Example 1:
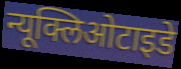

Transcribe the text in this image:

न्यूक्लिओटाइडे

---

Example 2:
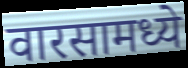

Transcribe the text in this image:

वारसामध्ये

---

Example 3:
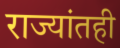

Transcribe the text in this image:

राज्यांतही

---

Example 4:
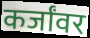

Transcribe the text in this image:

कर्जांवर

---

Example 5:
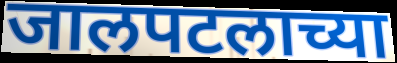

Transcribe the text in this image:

जालपटलाच्या